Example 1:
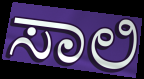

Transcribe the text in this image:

ಸಾಲಿ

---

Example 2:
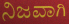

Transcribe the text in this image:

ನಿಜವಾಗಿ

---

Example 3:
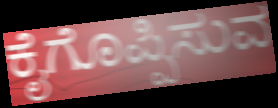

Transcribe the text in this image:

ಕೈಗೊಪ್ಪಿಸುವ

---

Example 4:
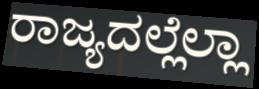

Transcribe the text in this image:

ರಾಜ್ಯದಲ್ಲೆಲ್ಲಾ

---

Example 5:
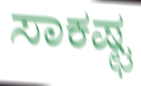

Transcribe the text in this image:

ಸಾಕಷ್ಟ